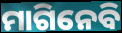
ମାଗିନେବି